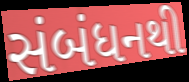
સંબંધનથી